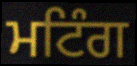
ਮਟਿੰਗ